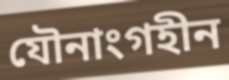
যৌনাংগহীন